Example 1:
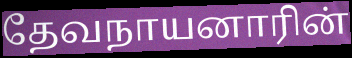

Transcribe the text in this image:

தேவநாயனாரின்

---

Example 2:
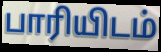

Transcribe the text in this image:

பாரியிடம்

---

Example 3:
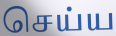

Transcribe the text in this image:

செய்ய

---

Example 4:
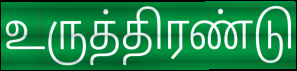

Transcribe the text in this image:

உருத்திரண்டு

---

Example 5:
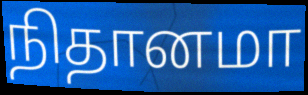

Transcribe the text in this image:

நிதானமா